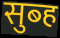
सुब्ह